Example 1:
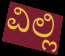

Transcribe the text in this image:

ವಿಲ್ಲಿ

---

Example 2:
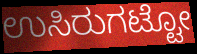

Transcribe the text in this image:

ಉಸಿರುಗಟ್ಟೋ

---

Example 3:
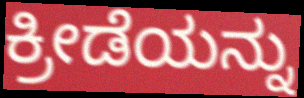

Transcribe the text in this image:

ಕ್ರೀಡೆಯನ್ನು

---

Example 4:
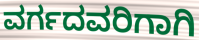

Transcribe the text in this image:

ವರ್ಗದವರಿಗಾಗಿ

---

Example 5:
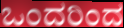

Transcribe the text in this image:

ಒಂದರಿಂದ